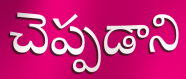
చెప్పడాని